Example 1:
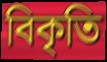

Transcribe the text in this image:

বিকৃতি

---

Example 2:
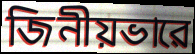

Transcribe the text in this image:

জিনীয়ভাৱে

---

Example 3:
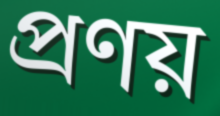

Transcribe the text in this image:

প্ৰণয়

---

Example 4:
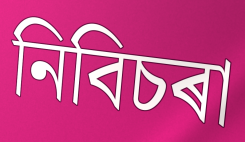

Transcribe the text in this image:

নিবিচৰা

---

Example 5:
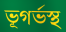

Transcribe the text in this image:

ভূগৰ্ভস্থ